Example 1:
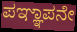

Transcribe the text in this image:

ಪಞ್ಞಾಪನೇ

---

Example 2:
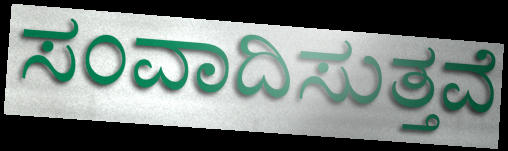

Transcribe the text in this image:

ಸಂವಾದಿಸುತ್ತವೆ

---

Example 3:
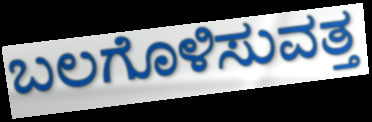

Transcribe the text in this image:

ಬಲಗೊಳಿಸುವತ್ತ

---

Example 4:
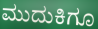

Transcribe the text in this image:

ಮುದುಕಿಗೂ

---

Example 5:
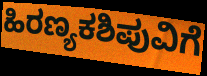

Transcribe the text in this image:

ಹಿರಣ್ಯಕಶಿಪುವಿಗೆ